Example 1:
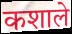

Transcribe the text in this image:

कशाले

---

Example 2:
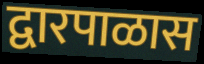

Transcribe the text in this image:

द्वारपाळास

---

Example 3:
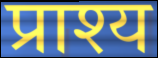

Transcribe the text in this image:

प्राश्य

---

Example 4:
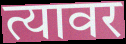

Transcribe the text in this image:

त्यावर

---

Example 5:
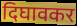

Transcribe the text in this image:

दिघावकर